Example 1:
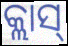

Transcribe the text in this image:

କ୍ଲାସ୍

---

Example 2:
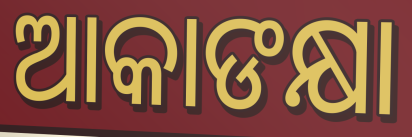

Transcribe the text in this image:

ଆକାଙକ୍ଷା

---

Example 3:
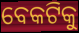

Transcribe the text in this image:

ବେକଟିକୁ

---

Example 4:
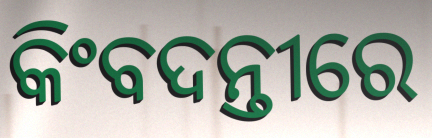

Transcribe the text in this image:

କିଂବଦନ୍ତୀରେ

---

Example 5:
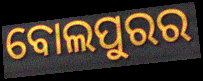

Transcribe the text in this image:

ବୋଲପୁରର